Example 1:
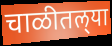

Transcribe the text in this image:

चाळीतल्या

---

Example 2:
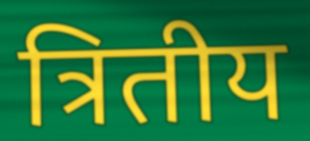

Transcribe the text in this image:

त्रितीय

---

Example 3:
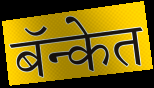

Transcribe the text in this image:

बॅन्केत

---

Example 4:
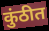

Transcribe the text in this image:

कुंठीत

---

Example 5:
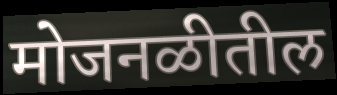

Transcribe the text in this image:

मोजनळीतील